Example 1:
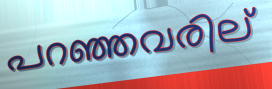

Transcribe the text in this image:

പറഞ്ഞവരില്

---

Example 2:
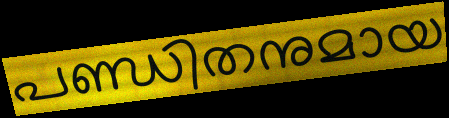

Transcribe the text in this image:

പണ്ഡിതനുമായ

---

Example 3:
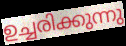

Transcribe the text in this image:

ഉച്ചരിക്കുന്നു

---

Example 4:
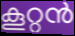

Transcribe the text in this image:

കൂറ്റൻ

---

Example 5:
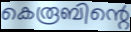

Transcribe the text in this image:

കെരൂബിന്റെ